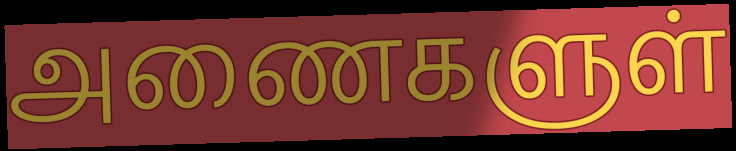
அணைகளுள்